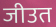
जीउत